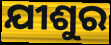
ଯୀଶୁର